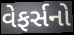
વેફર્સનો